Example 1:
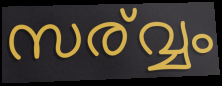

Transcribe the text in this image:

സര്വ്വം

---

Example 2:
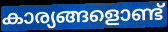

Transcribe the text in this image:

കാര്യങ്ങളൊണ്ട്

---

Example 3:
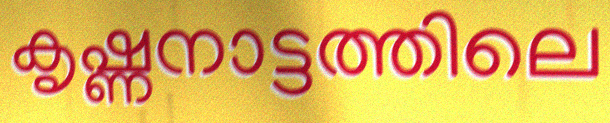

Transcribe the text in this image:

കൃഷ്ണനാട്ടത്തിലെ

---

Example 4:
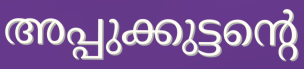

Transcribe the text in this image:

അപ്പുക്കുട്ടന്റെ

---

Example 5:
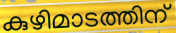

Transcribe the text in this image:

കുഴിമാടത്തിന്